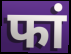
फां